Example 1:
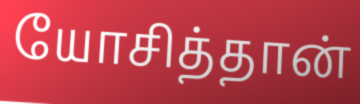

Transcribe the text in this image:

யோசித்தான்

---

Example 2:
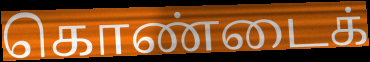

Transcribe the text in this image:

கொண்டைக்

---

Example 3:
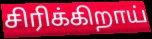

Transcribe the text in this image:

சிரிக்கிறாய்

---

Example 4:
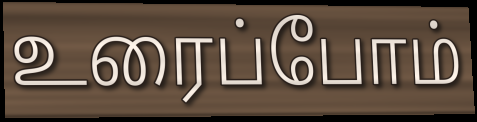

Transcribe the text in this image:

உரைப்போம்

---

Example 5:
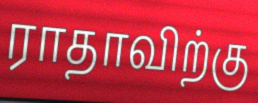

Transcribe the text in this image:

ராதாவிற்கு